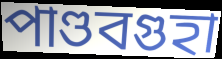
পাণ্ডবগুহা